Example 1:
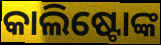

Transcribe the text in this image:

କାଲିଷ୍ଟୋଙ୍କ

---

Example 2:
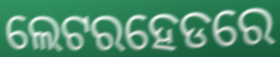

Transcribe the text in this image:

ଲେଟରହେଡରେ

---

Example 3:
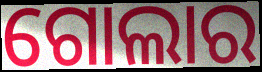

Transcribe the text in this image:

ଗୋଲାର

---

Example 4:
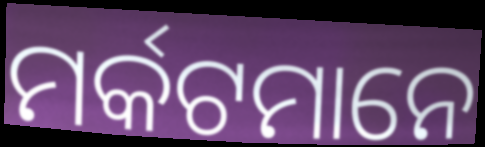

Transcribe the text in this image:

ମର୍କଟମାନେ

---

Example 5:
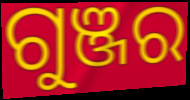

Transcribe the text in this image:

ଗୁଞ୍ଜର